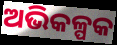
ଅଭିକଳ୍ପକ